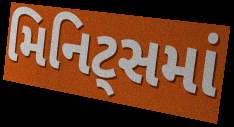
મિનિટ્સમાં